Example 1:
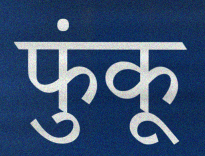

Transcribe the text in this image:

फुंकू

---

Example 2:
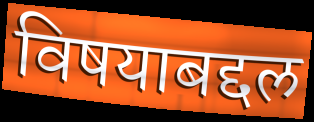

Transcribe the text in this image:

विषयाबद्दल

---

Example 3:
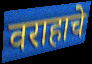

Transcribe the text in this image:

वराहाचे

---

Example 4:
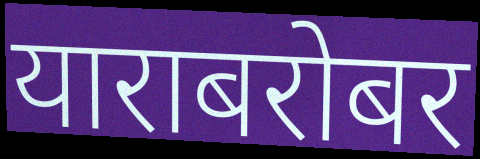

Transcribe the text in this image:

याराबरोबर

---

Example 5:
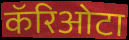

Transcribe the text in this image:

कॅरिओटा